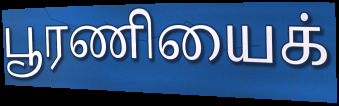
பூரணியைக்